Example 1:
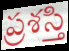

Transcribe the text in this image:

ప్రశస్తి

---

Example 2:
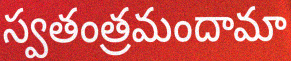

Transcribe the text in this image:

స్వతంత్రమందామా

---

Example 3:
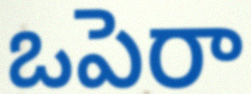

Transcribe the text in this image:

ఒపెరా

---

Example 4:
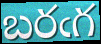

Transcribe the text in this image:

బరఁగ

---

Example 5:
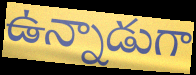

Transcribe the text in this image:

ఉన్నాడుగా